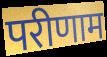
परीणाम